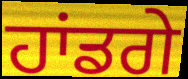
ਹਾਂਡਗੇ